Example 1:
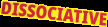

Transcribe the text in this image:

DISSOCIATIVE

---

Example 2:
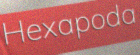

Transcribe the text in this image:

Hexapoda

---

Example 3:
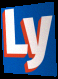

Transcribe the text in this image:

Ly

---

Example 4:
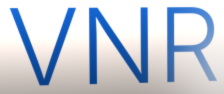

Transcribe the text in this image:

VNR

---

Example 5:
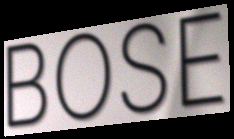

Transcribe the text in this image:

BOSE